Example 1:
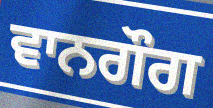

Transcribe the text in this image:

ਵਾਨਗੌਗ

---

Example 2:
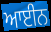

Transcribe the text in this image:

ਆਈਨ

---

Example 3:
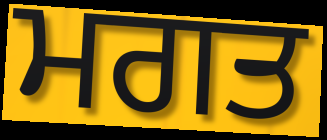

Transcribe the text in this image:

ਮਗਤ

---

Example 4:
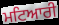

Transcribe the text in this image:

ਮਟਿਆਰੀ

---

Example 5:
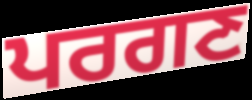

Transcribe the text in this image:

ਪਰਗਣ